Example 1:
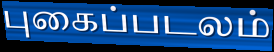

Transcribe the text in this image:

புகைப்படலம்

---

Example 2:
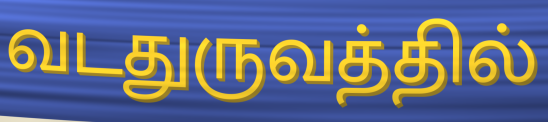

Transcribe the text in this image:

வடதுருவத்தில்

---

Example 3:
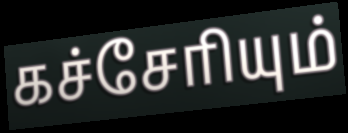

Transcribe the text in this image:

கச்சேரியும்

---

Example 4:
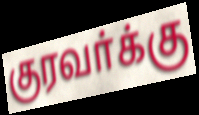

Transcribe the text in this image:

குரவர்க்கு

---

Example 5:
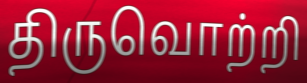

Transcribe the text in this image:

திருவொற்றி